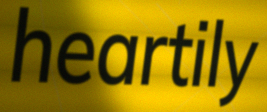
heartily